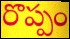
రొప్పం